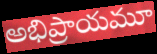
అభిప్రాయమూ